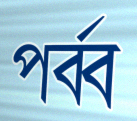
পর্ব্ব